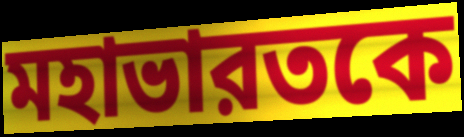
মহাভারতকে